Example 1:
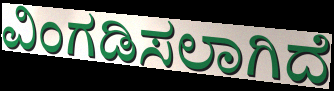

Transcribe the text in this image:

ವಿಂಗಡಿಸಲಾಗಿದೆ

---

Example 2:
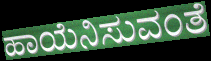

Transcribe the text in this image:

ಹಾಯೆನಿಸುವಂತೆ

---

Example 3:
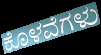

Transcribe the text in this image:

ಕೊಳವೆಗಳು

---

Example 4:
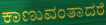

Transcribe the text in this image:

ಕಾಣುವಂತಾದರೆ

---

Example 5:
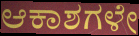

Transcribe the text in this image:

ಆಕಾಶಗಳೇ